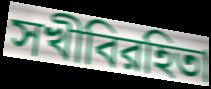
সখীবিরহিতা